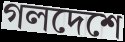
গলদেশে